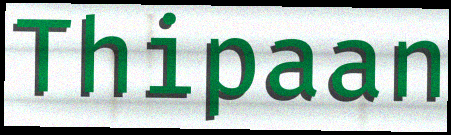
Thipaan